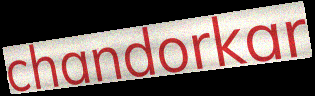
chandorkar